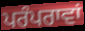
ਪਰੰਪਰਾਵਾਂ